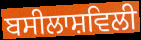
ਬਸੀਲਾਸ਼ਵਿਲੀ